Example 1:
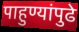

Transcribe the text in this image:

पाहुण्यांपुढे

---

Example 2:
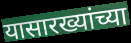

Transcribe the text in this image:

यासारख्यांच्या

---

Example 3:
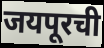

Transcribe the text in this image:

जयपूरची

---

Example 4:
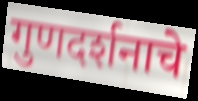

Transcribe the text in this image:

गुणदर्शनाचे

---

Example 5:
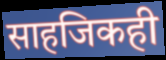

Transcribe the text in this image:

साहजिकही